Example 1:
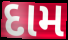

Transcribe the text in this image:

દામ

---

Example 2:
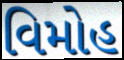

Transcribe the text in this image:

વિમોહ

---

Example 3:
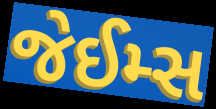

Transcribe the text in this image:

જેઈમ્સ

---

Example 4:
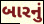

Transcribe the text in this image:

બારનું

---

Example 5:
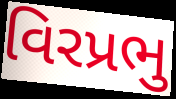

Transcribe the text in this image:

વિરપ્રભુ